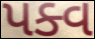
પક્વ